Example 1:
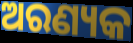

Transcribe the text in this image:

ଅରଣ୍ୟକ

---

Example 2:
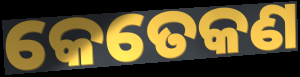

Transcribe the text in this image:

କେତେକଣ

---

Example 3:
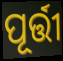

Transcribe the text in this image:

ପୂର୍ତ୍ତୀ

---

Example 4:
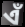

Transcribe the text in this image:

ଏଁ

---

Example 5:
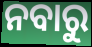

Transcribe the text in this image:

ନବାରୁ